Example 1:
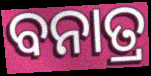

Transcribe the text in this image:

ବନାତ୍ର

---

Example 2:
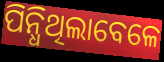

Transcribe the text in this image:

ପିନ୍ଧିଥିଲାବେଳେ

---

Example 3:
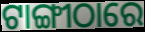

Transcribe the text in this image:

ଟାଙ୍ଗୀଠାରେ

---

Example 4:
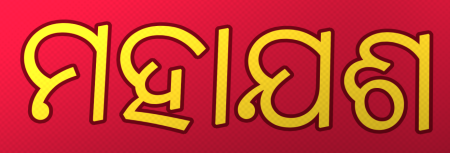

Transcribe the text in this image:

ମହାଯଶ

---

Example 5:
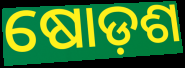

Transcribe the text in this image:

ଷୋଡ଼ଶ